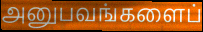
அனுபவங்களைப்